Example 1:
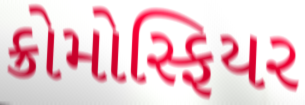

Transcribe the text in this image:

ક્રોમોસ્ફિયર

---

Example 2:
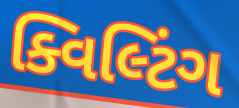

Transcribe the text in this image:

ક્વિલ્ટિંગ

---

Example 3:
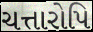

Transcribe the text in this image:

ચત્તારોપિ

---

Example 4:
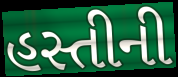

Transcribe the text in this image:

હસ્તીની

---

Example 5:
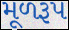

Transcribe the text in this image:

મૂળરૂપ